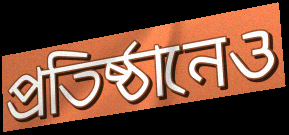
প্রতিষ্ঠানেও